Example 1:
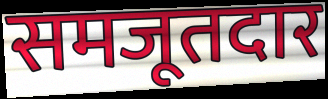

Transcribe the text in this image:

समजूतदार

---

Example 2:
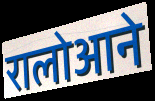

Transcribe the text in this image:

रालोआने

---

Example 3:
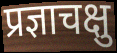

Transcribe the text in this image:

प्रज्ञाचक्षु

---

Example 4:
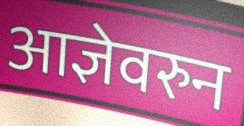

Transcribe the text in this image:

आज्ञेवरुन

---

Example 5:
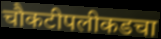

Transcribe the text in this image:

चौकटीपलीकडचा